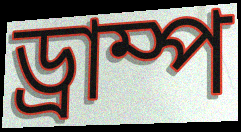
ড্রাম্প